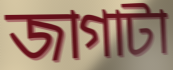
জাগাটা